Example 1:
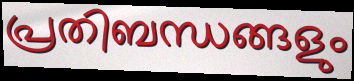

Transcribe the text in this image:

പ്രതിബന്ധങ്ങളും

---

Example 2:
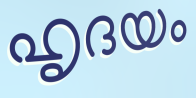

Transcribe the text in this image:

ഹൃദയം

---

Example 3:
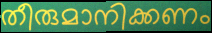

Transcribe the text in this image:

തീരുമാനിക്കണം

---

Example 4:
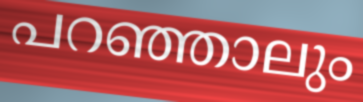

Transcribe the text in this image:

പറഞ്ഞാലും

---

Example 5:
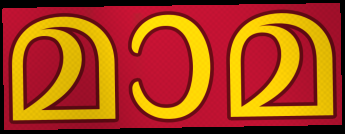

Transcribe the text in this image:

മാമ